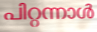
പിറ്റന്നാൾ